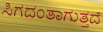
ಸಿಗದಂತಾಗುತ್ತದೆ